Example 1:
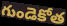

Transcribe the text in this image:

గుండెకోత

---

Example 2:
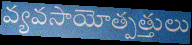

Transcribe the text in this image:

వ్యవసాయోత్పత్తులు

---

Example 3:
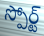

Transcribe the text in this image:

స్పోర్ట్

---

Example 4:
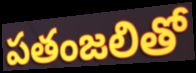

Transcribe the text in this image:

పతంజలితో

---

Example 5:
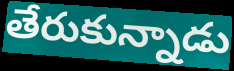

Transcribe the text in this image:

తేరుకున్నాడు